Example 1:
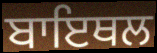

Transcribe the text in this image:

ਬਾਇਥਲ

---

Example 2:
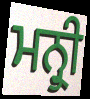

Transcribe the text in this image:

ਮਨ੍ਤ੍ਰੀ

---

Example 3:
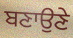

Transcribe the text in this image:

ਬਣਾਉਣੇ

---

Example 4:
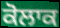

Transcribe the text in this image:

ਕੋਲਾਕ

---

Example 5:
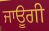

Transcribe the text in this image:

ਜਾਊਗੀ